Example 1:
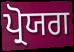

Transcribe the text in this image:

ਪ੍ਰੋਯਗ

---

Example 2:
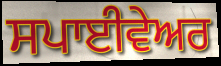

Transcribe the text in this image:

ਸਪਾਈਵੇਅਰ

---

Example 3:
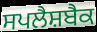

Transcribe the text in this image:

ਸਪਲੈਸ਼ਬੈਕ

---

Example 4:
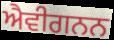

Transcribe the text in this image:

ਐਵੀਗਨਨ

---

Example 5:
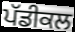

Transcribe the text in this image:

ਪੱਡੀਕਲ